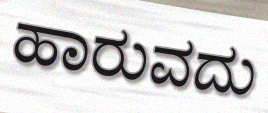
ಹಾರುವದು